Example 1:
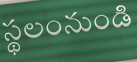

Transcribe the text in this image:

స్థలంనుండి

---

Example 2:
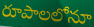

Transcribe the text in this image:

రూపాలలోనూ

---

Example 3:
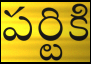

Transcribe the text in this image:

పర్టికి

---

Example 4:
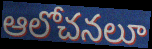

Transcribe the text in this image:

ఆలోచనలూ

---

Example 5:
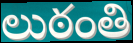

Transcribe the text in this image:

లుఠంతి